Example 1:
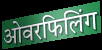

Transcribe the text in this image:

ओवरफिलिंग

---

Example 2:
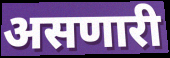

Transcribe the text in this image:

असणारी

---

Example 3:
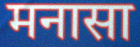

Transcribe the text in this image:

मनासा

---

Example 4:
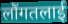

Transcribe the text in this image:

लौंगतलाई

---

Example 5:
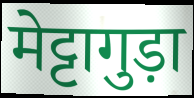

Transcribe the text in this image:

मेट्टागुड़ा